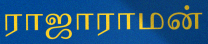
ராஜாராமன்